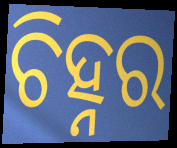
ଚିହ୍ନର